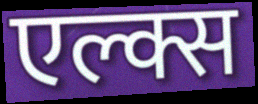
एल्क्स